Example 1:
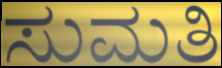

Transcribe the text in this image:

ಸುಮತಿ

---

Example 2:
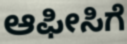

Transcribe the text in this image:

ಆಫೀಸಿಗೆ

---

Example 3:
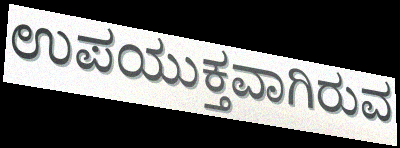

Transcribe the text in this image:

ಉಪಯುಕ್ತವಾಗಿರುವ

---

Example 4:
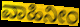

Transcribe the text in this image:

ವಾಹಿನೀಂ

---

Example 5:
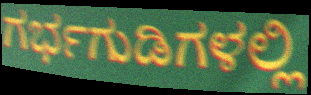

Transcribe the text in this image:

ಗರ್ಭಗುಡಿಗಳಲ್ಲಿ